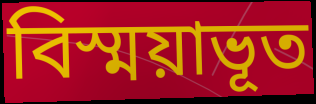
বিস্ময়াভূত